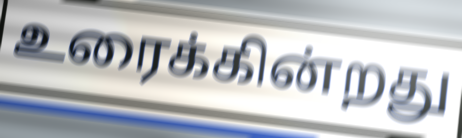
உரைக்கின்றது